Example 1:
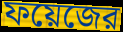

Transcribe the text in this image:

ফয়েজের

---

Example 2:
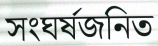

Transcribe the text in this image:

সংঘর্ষজনিত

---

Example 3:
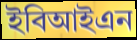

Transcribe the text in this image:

ইবিআইএন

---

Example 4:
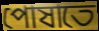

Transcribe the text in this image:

পোষাতে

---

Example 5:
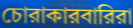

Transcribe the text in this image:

চোরাকারবারিরা